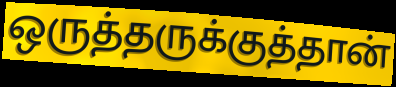
ஒருத்தருக்குத்தான்